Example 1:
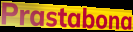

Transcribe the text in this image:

Prastabona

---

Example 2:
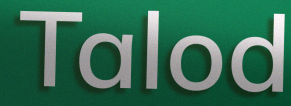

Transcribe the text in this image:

Talod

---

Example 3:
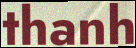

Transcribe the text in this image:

thanh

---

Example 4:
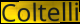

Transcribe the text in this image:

Coltelli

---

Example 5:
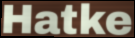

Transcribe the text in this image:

Hatke